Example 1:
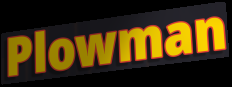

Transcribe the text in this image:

Plowman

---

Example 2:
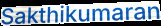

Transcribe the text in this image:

Sakthikumaran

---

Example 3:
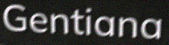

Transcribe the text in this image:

Gentiana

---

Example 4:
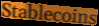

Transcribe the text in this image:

Stablecoins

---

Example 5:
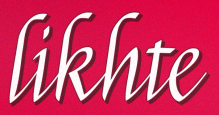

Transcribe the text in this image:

likhte